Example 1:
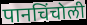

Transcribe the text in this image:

पानचिंचोली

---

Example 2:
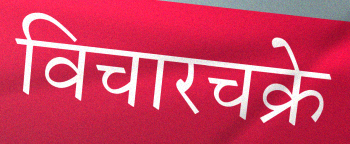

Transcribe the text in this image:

विचारचक्रे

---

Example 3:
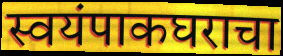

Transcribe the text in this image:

स्वयंपाकघराचा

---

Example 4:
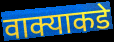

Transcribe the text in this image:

वाक्याकडे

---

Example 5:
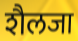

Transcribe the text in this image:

शैलजा